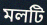
মলটি